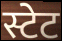
स्टेट